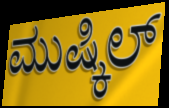
ಮುಷ್ಕಿಲ್